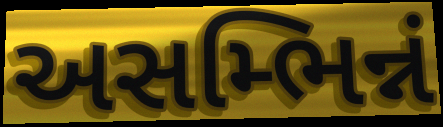
અસમ્ભિન્નં